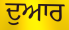
ਦੁਆਰ